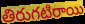
తిరుగటిరాయి